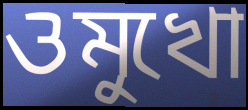
ওমুখো